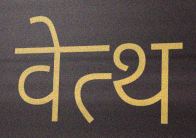
वेत्थ